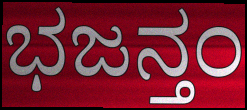
ಭಜನ್ತಂ